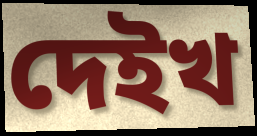
দেইখ